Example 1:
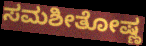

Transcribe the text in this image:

ಸಮಶೀತೋಷ್ಣ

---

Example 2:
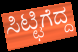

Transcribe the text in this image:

ಸಿಟ್ಟಿಗೆದ್ದ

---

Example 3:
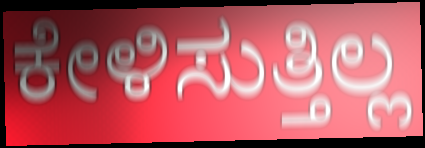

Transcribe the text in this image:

ಕೇಳಿಸುತ್ತಿಲ್ಲ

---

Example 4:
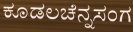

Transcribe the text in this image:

ಕೂಡಲಚೆನ್ನಸಂಗ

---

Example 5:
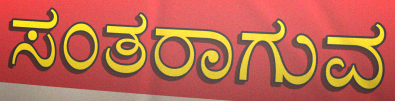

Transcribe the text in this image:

ಸಂತರಾಗುವ